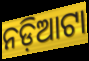
ନଡ଼ିଆଟା